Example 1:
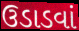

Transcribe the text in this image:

ઉડાડવાં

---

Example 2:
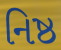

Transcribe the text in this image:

નિષ્ઠ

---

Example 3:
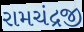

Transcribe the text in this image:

રામચંદ્રજી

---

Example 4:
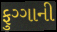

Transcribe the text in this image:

ફુગ્ગાની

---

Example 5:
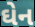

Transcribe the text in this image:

ઘેન